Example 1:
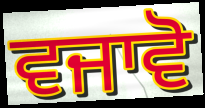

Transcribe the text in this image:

ਵਜਾਵੋ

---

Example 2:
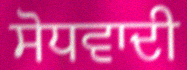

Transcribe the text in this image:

ਸੋਧਵਾਦੀ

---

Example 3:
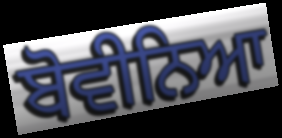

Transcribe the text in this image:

ਬੋਵੀਨਿਆ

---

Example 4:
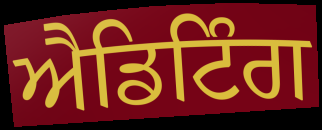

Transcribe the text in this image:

ਐਡਿਟਿੰਗ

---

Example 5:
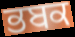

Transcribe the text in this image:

ਭਬਕ